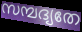
സമ്പദ്യതേ